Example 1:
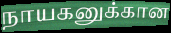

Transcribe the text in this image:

நாயகனுக்கான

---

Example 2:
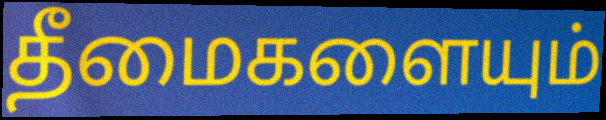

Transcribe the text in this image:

தீமைகளையும்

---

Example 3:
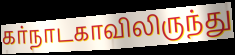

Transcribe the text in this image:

கர்நாடகாவிலிருந்து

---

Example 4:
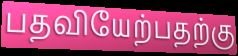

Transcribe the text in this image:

பதவியேற்பதற்கு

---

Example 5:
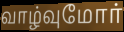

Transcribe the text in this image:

வாழ்வுமோர்